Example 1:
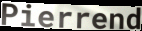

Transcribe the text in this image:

Pierrend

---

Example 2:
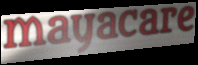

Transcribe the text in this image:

mayacare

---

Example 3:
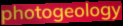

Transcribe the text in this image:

photogeology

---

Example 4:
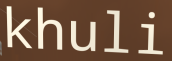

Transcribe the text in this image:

khuli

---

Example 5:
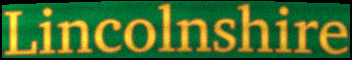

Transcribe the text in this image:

Lincolnshire